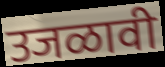
उजळावी